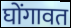
घोंगावत